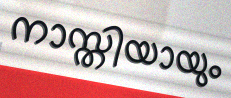
നാസ്തിയായും